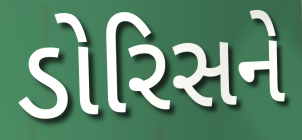
ડોરિસને